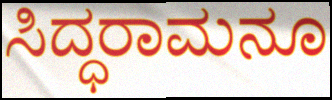
ಸಿದ್ಧರಾಮನೂ